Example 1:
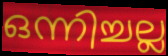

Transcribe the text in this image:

ഒന്നിച്ചല്ല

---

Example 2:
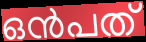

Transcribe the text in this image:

ഒൻപത്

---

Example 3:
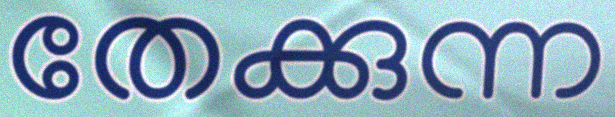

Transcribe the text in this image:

തേക്കുന്ന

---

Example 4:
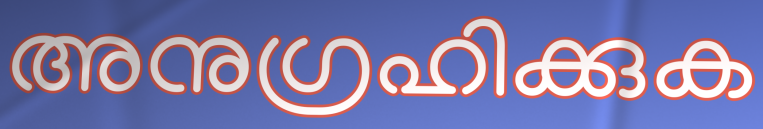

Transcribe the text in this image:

അനുഗ്രഹിക്കുക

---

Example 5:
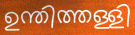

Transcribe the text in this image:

ഉന്തിത്തള്ളി